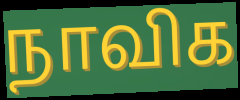
நாவிக